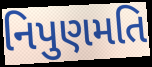
નિપુણમતિ